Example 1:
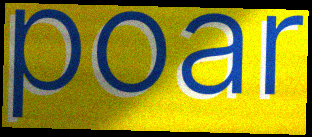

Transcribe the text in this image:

poar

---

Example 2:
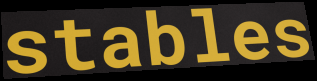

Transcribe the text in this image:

stables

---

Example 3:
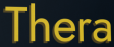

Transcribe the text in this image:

Thera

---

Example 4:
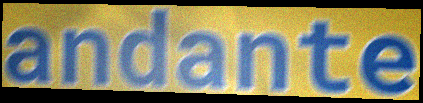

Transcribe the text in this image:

andante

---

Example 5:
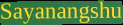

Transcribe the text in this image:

Sayanangshu